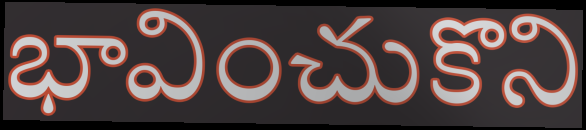
భావించుకొని